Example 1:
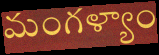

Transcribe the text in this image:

మంగళ్యాం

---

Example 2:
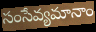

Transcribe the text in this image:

సంసేవ్యమానాం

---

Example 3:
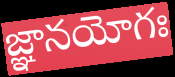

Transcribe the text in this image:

జ్ఞానయోగః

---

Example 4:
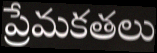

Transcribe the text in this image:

ప్రేమకతలు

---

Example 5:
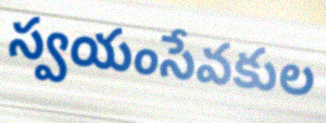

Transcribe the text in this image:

స్వయంసేవకుల